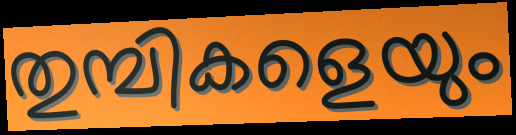
തുമ്പികളെയും